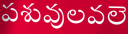
పశువులవలె